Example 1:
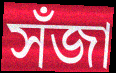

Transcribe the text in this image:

সঁজা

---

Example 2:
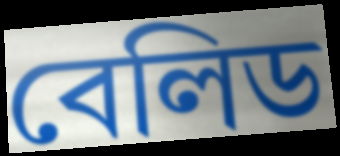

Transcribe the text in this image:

বেলিড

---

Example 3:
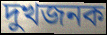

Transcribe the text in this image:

দুখজনক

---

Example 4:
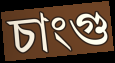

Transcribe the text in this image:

চাংগু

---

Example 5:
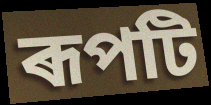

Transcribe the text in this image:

ৰূপটি